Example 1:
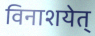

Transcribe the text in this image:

विनाशयेत्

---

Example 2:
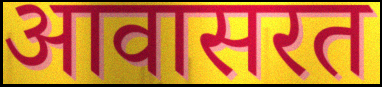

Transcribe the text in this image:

आवासरत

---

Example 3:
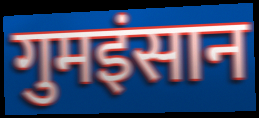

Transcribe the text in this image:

गुमइंसान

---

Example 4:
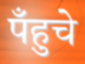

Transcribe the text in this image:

पँहुचे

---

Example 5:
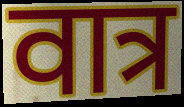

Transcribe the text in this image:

वात्र